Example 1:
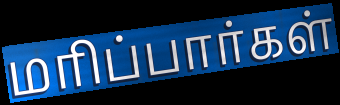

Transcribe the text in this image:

மரிப்பார்கள்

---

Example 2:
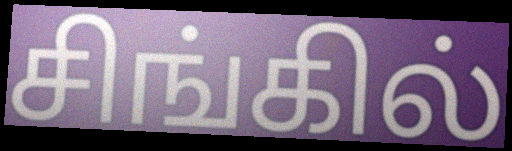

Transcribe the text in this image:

சிங்கில்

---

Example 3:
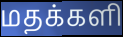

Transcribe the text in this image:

மதக்களி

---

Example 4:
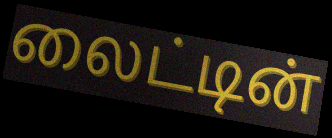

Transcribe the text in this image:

லைட்டின்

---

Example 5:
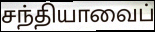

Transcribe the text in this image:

சந்தியாவைப்